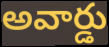
అవార్డు